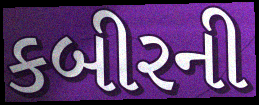
કબીરની